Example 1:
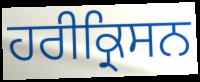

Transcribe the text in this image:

ਹਰੀਕ੍ਰਿਸਨ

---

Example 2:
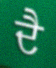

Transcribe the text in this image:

ਦੈ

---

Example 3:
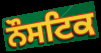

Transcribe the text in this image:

ਨੌਸਟਿਕ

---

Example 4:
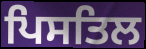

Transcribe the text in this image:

ਪਿਸਤਿਲ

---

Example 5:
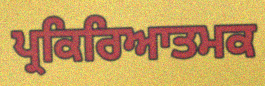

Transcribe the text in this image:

ਪ੍ਰਕਿਰਿਆਤਮਕ